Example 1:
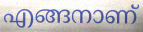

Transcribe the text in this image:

എങ്ങനാണ്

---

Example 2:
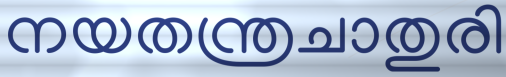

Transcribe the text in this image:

നയതന്ത്രചാതുരി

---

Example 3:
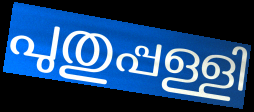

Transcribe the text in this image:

പുതുപ്പള്ളി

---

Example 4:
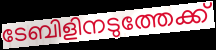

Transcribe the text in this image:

ടേബിളിനടുത്തേക്ക്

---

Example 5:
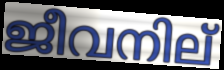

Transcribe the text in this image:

ജീവനില്